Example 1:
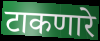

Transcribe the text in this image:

टाकणारे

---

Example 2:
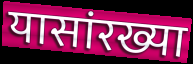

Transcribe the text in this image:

यासांरख्या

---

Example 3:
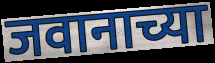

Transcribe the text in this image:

जवानाच्या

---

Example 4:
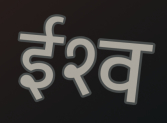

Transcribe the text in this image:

ईश्व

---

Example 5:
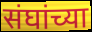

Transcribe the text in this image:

संघांच्या